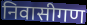
निवासीगण